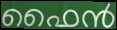
ഫൈൻ